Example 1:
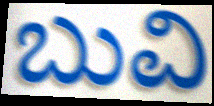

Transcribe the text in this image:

ಬುವಿ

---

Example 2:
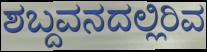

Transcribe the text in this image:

ಶಬ್ದವನದಲ್ಲಿರಿವ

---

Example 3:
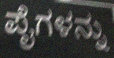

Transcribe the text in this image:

ಪೈಗಳನ್ನು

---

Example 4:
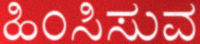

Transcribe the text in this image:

ಹಿಂಸಿಸುವ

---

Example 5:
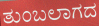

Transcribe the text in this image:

ತುಂಬಲಾಗದ